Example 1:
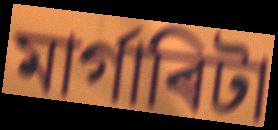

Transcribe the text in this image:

মাৰ্গাৰিটা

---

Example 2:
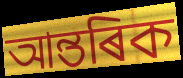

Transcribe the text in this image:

আন্তৰিক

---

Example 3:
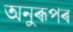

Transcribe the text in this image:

অনুৰূপৰ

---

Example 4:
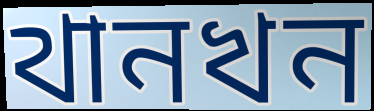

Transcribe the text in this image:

থানখন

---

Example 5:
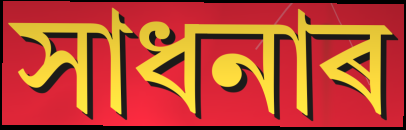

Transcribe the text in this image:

সাধনাৰ